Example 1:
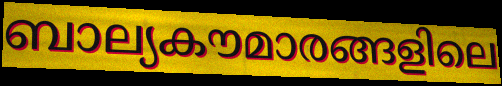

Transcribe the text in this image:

ബാല്യകൗമാരങ്ങളിലെ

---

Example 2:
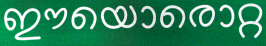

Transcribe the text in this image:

ഈയൊരൊറ്റ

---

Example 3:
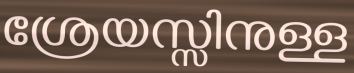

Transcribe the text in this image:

ശ്രേയസ്സിനുള്ള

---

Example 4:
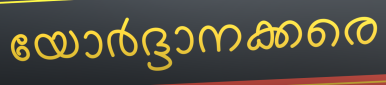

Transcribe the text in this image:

യോർദ്ദാനക്കരെ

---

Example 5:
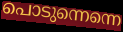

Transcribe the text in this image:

പൊടുന്നെന്നെ